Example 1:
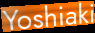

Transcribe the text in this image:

Yoshiaki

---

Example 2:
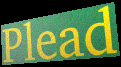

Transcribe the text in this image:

Plead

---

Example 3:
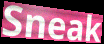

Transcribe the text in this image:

Sneak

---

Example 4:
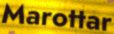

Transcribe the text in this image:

Marottar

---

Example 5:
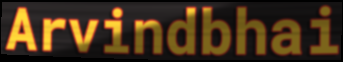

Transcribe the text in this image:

Arvindbhai